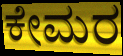
ಕೇಮರ